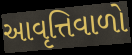
આવૃત્તિવાળો